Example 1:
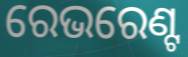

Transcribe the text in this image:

ରେଭରେଣ୍ଟ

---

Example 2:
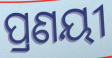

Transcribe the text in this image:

ପ୍ରଣୟୀ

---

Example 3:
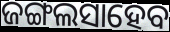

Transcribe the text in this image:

ଜଙ୍ଗଲସାହେବ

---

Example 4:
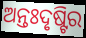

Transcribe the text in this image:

ଅନ୍ତଃଦୃଷ୍ଟିର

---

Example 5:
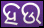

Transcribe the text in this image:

ହଉ